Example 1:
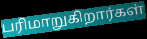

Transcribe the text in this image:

பரிமாறுகிறார்கள்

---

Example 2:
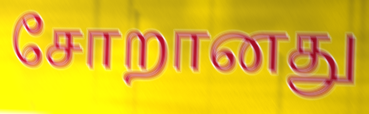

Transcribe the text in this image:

சோறானது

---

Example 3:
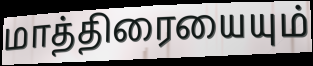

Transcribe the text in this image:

மாத்திரையையும்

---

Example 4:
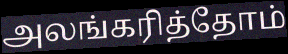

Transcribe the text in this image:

அலங்கரித்தோம்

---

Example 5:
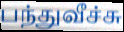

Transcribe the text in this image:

பந்துவீச்சு